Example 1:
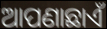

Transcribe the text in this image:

ଆପଣାଛାଏଁ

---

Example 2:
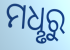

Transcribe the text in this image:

ମଧୢରୁ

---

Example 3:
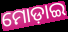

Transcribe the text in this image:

ମୋଡ଼ାଇ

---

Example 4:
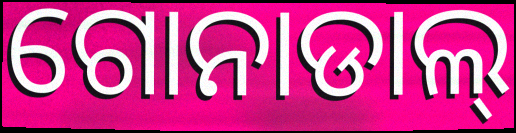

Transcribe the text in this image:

ଗୋନାଡାଲ୍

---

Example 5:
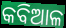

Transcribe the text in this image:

କବିଆଳ